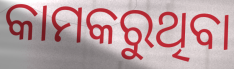
କାମକରୁଥିବା